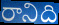
రానిది